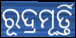
ରୂଦ୍ରମୂର୍ତ୍ତି